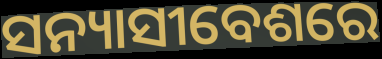
ସନ୍ୟାସୀବେଶରେ